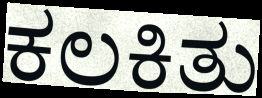
ಕಲಕಿತು